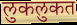
लुकलुकत